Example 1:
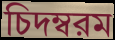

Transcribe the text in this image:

চিদম্বরম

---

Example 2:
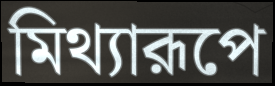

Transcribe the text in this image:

মিথ্যারূপে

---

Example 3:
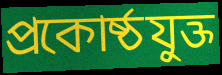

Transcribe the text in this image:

প্রকোষ্ঠযুক্ত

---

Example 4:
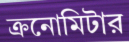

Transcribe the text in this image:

ক্রনোমিটার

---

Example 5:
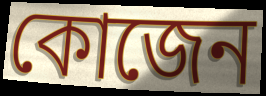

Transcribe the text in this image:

কোজেন